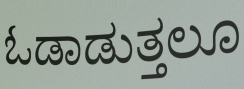
ಓಡಾಡುತ್ತಲೂ